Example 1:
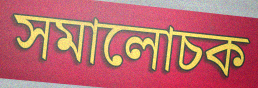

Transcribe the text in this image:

সমালোচক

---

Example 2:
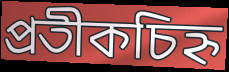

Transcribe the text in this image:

প্ৰতীকচিহ্ন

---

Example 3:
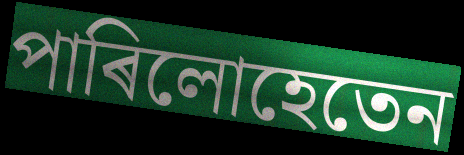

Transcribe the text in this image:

পাৰিলোহেতেন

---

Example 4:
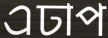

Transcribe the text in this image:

এঢাপ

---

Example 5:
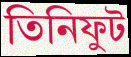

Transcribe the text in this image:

তিনিফুট